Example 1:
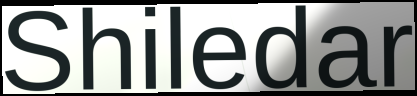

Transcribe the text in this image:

Shiledar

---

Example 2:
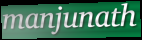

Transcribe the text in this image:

manjunath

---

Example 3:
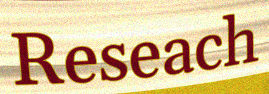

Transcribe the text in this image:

Reseach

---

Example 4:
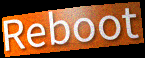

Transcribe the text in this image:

Reboot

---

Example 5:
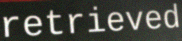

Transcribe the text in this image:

retrieved